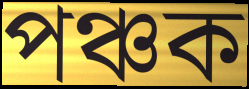
পঞ্চক